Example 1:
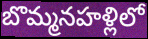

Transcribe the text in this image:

బొమ్మనహళ్లిలో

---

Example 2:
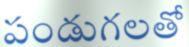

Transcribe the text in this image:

పండుగలతో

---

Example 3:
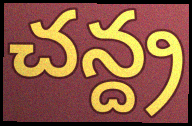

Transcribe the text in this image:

చన్ద్ర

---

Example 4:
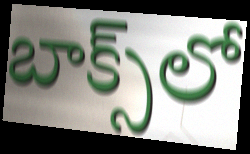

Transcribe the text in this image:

బాక్స్‌లో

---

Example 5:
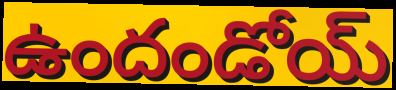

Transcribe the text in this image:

ఉందండోయ్